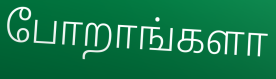
போறாங்களா